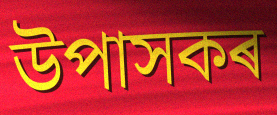
উপাসকৰ